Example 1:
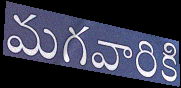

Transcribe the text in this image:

మగవారికి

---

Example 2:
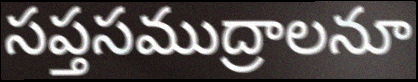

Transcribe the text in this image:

సప్తసముద్రాలనూ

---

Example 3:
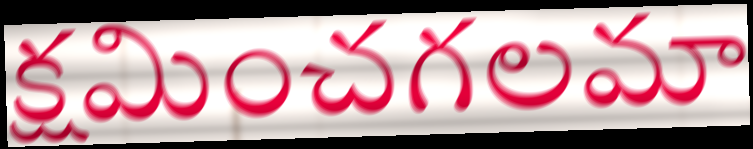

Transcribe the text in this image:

క్షమించగలమా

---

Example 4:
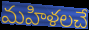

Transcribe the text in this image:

మహిళలచే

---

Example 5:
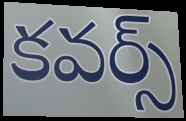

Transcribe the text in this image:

కవర్స్